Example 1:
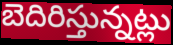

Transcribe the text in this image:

బెదిరిస్తున్నట్లు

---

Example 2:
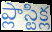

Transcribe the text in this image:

ప్లాస్టిక్ల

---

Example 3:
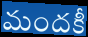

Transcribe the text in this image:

మందకీ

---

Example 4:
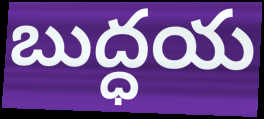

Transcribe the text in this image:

బుద్ధయ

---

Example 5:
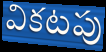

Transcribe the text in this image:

వికటపు